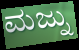
ಮಜ್ನು